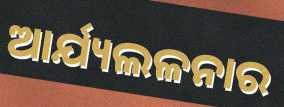
ଆର୍ଯ୍ୟଲଳନାର